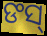
ଙସ୍